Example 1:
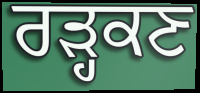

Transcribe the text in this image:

ਰੜ੍ਹਕਣ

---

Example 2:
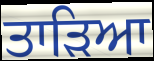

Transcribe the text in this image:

ਤਾੜਿਆ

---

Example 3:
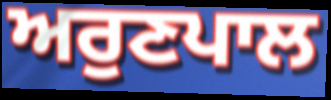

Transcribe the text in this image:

ਅਰੁਣਪਾਲ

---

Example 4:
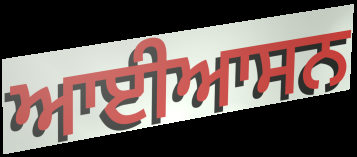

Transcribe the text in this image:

ਆਈਆਸਨ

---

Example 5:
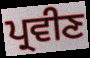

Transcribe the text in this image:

ਪ੍ਰਵੀਣ